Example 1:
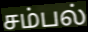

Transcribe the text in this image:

சம்பல்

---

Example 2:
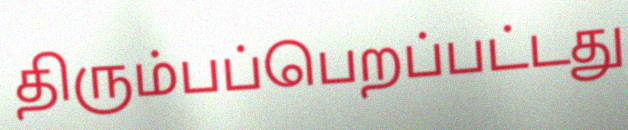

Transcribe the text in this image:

திரும்பப்பெறப்பட்டது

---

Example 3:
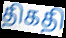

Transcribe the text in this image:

திகதி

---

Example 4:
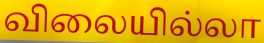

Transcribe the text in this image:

விலையில்லா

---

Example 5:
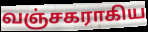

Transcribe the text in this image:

வஞ்சகராகிய